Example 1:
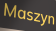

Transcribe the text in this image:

Maszyn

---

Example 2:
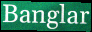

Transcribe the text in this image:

Banglar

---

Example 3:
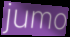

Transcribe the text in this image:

jumo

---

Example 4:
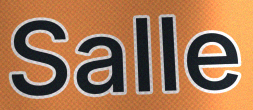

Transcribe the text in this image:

Salle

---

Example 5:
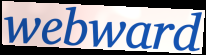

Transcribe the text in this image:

webward